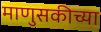
माणुसकीच्या